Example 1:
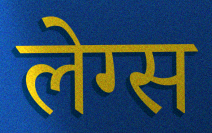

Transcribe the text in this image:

लेग्स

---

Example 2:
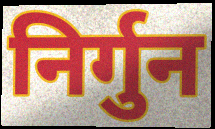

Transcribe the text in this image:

निर्गुन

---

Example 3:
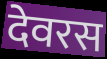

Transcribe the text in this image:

देवरस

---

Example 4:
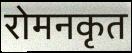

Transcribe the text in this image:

रोमनकृत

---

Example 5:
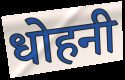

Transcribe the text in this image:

धोहनी